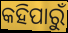
କହିପାରୁଁ